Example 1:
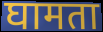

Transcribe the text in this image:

घामता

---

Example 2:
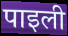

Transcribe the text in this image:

पाइली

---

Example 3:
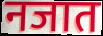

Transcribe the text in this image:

नजात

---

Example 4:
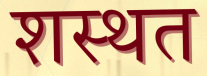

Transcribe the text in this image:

शस्थत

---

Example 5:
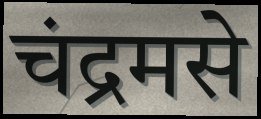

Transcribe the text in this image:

चंद्रमसे